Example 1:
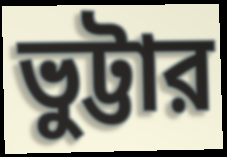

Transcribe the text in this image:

ভুট্টার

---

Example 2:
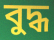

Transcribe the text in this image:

বুদ্ধ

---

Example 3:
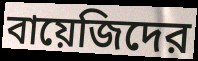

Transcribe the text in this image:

বায়েজিদের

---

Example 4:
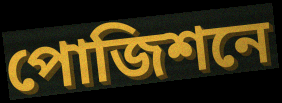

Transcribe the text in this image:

পোজিশনে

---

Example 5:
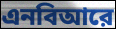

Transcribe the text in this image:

এনবিআরে